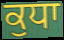
ਕੁਧਾ